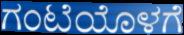
ಗಂಟೆಯೊಳಗೆ